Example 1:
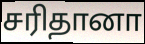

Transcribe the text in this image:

சரிதானா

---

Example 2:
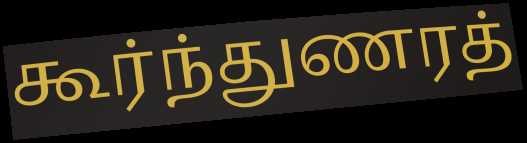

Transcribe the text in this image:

கூர்ந்துணரத்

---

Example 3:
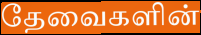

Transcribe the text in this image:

தேவைகளின்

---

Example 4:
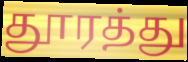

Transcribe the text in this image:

தூரத்து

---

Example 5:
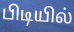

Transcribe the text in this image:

பிடியில்